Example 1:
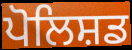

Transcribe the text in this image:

ਪੋਲਿਸ਼ਡ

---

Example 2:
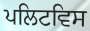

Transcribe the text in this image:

ਪਲਿਟਵਿਸ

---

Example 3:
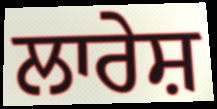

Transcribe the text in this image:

ਲਾਰੇਸ਼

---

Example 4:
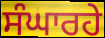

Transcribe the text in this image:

ਸੰਘਾਰਹੇ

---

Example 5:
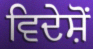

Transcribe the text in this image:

ਵਿਦੇਸ਼ੋਂ